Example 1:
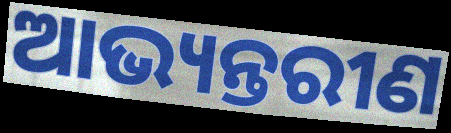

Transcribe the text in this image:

ଆଭ୍ୟନ୍ତରୀଣ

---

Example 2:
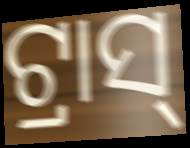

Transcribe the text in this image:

ଟ୍ରାସ୍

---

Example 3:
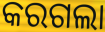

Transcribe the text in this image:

କରଗଲା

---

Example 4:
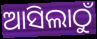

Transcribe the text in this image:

ଆସିଲାଠୁଁ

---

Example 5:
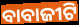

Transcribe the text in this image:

ବାବାଜୀଟି